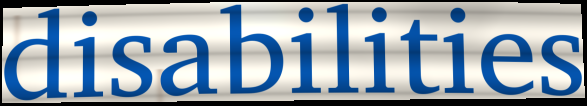
disabilities